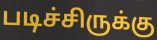
படிச்சிருக்கு